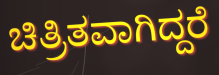
ಚಿತ್ರಿತವಾಗಿದ್ದರೆ